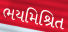
ભયમિશ્રિત